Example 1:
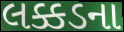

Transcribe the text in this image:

લક્કડના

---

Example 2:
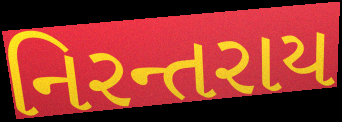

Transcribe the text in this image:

નિરન્તરાય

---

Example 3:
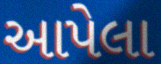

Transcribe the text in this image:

આપેલા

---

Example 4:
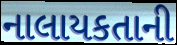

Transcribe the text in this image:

નાલાયકતાની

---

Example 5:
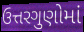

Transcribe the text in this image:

ઉત્તરગુણોમાં